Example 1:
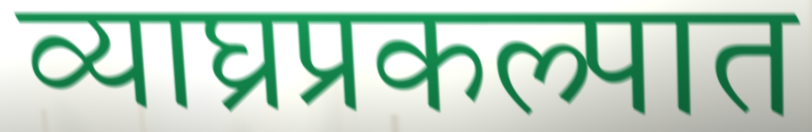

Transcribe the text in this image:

व्याघ्रप्रकल्पात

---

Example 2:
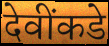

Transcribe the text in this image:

देवींकडे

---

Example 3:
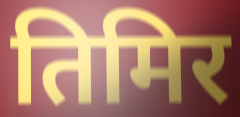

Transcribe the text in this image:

तिमिर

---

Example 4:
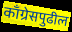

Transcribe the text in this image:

काँग्रेसपुढील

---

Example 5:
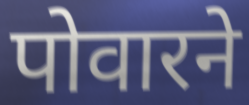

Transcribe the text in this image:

पोवारने